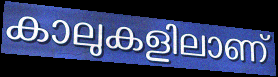
കാലുകളിലാണ്